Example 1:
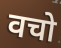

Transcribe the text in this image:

वचो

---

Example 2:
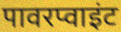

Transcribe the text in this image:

पावरप्वाइंट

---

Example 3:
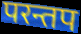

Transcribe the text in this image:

परन्तप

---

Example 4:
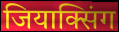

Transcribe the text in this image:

जियाक्सिंग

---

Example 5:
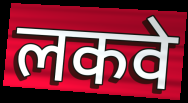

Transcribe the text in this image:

लकवे